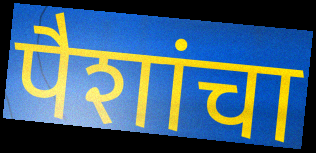
पैशांचा